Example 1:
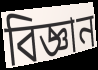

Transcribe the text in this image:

বিজ্ঞান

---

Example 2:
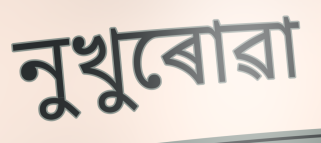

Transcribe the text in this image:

নুখুৰোৱা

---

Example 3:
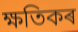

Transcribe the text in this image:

ক্ষতিকৰ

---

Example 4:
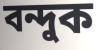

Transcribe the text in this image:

বন্দুক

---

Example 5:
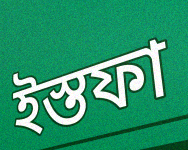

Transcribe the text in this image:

ইস্তফা